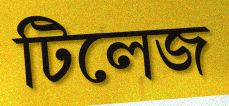
টিলেজ